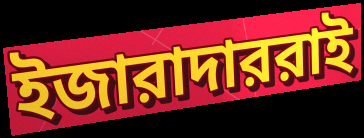
ইজারাদাররাই